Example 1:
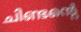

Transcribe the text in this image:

ചിണ്ടന്റെ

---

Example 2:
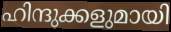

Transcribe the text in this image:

ഹിന്ദുക്കളുമായി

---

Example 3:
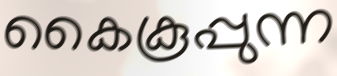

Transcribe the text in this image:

കൈകൂപ്പുന്ന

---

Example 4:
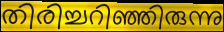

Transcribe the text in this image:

തിരിച്ചറിഞ്ഞിരുന്നു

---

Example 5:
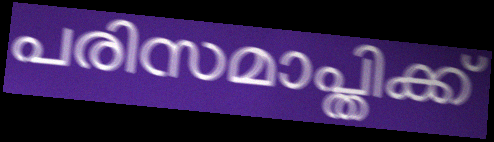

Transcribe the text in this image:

പരിസമാപ്തിക്ക്